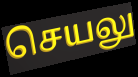
செயலு